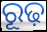
ରୂଢ଼